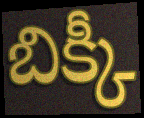
బిక్కీ